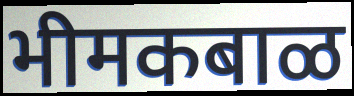
भीमकबाळ